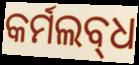
କର୍ମଲବ୍‌ଧ